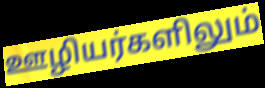
ஊழியர்களிலும்